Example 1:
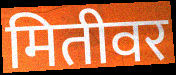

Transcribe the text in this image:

मितीवर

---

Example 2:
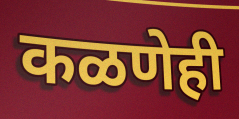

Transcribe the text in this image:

कळणेही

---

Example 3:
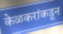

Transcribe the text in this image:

केळकरांकडून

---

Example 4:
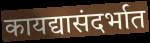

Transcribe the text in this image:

कायद्यासंदर्भात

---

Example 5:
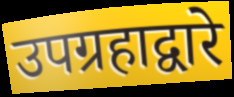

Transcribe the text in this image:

उपग्रहाद्वारे